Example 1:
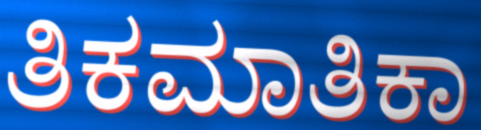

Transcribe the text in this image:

ತಿಕಮಾತಿಕಾ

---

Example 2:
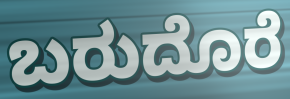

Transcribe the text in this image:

ಬರುದೊರೆ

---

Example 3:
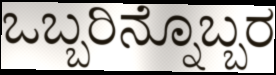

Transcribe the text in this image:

ಒಬ್ಬರಿನ್ನೊಬ್ಬರ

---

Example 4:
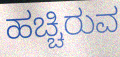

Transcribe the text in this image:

ಹಚ್ಚಿರುವ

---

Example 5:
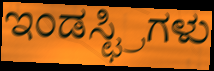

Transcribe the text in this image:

ಇಂಡಸ್ಟ್ರಿಗಳು